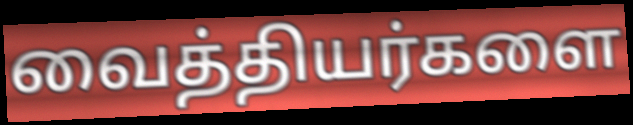
வைத்தியர்களை